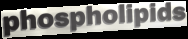
phospholipids